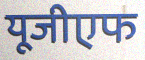
यूजीएफ